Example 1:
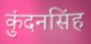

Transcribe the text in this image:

कुंदनसिंह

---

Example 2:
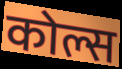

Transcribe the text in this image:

कोल्स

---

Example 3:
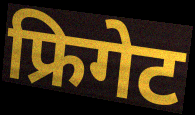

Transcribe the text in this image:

फ्रिगेट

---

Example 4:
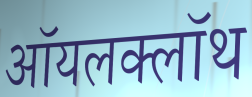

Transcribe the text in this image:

ऑयलक्लॉथ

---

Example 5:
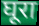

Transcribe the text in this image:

घूरा